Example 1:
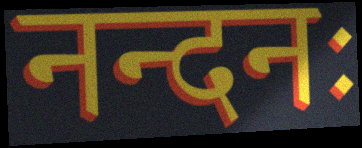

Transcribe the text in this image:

नन्दनः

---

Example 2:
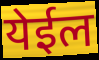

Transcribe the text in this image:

येईल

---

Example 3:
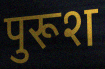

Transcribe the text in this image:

पुरूश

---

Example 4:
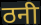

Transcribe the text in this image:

ठनी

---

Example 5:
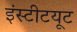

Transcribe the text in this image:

इंस्‍टीटयूट